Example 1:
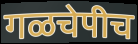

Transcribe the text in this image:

गळचेपीच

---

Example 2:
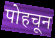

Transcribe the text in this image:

पोहचून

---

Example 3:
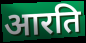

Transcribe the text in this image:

आरति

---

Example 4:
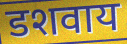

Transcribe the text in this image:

डशवाय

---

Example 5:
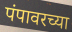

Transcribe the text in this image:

पंपावरच्या